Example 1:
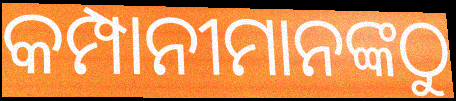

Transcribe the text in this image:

କମ୍ପାନୀମାନଙ୍କଠୁ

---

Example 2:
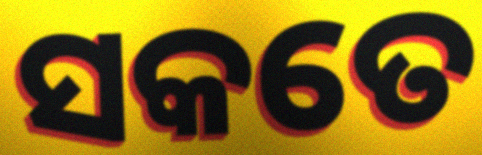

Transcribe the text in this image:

ସକତେ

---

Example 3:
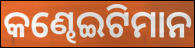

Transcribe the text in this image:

କଣ୍ଢେଇଟିମାନ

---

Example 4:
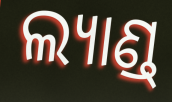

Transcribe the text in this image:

ଲ୍ୟାଣ୍ଡ୍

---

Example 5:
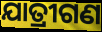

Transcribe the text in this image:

ଯାତ୍ରୀଗଣ